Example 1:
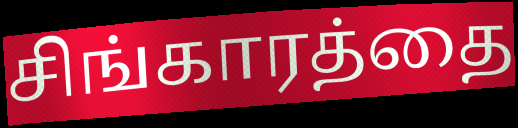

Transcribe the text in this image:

சிங்காரத்தை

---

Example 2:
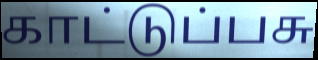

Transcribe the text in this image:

காட்டுப்பசு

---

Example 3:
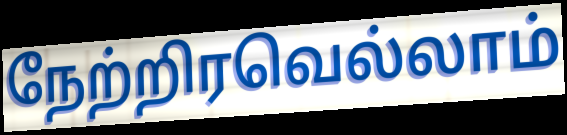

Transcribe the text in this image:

நேற்றிரவெல்லாம்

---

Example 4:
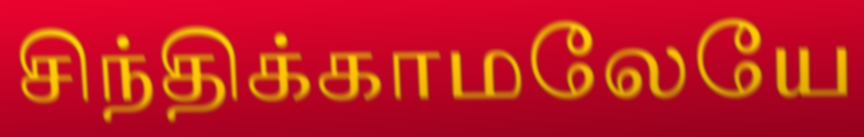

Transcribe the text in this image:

சிந்திக்காமலேயே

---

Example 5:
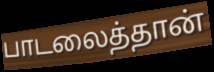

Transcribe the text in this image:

பாடலைத்தான்